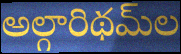
అల్గారిథమ్‌ల